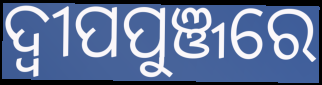
ଦ୍ବୀପପୁଞ୍ଜରେ